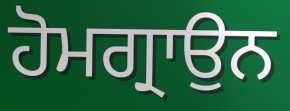
ਹੋਮਗ੍ਰਾਉਨ